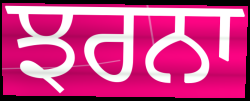
ਝਰਨਾ